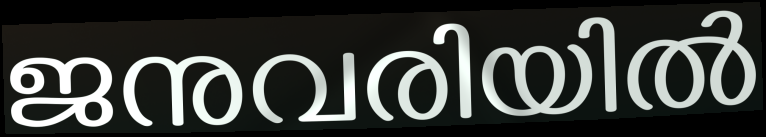
ജനുവരിയിൽ